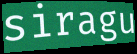
siragu